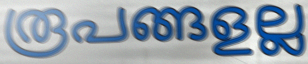
രൂപങ്ങളല്ല